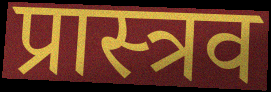
प्रास्त्रव